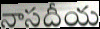
నాసదీయ